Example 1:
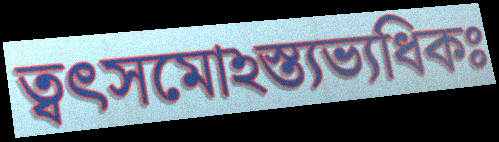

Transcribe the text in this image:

ত্বৎসমোঽস্ত্যভ্যধিকঃ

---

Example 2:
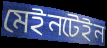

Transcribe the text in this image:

মেইনটেইন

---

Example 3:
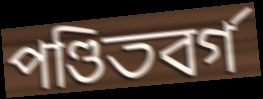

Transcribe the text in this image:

পণ্ডিতবর্গ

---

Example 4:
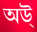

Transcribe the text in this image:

অউ্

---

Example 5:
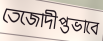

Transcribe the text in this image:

তেজোদীপ্তভাবে